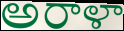
అరాళా